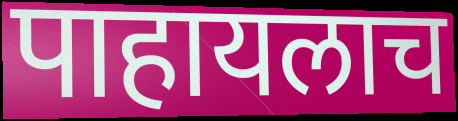
पाहायलाच